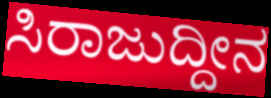
ಸಿರಾಜುದ್ದೀನ